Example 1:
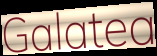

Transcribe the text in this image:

Galatea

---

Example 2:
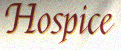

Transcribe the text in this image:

Hospice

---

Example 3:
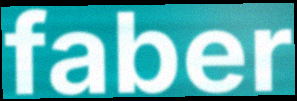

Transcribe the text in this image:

faber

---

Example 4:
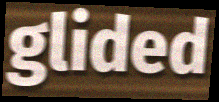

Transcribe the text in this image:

glided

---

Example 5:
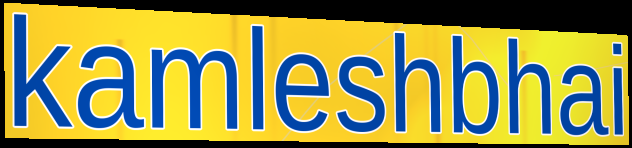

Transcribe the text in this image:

kamleshbhai